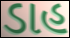
ડાહ